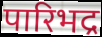
पारिभद्र